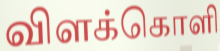
விளக்கொளி